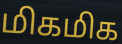
மிகமிக